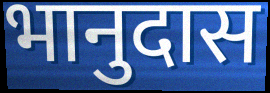
भानुदास